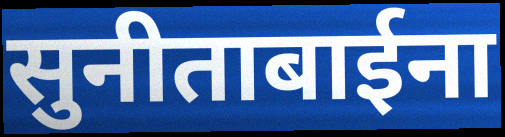
सुनीताबाईना